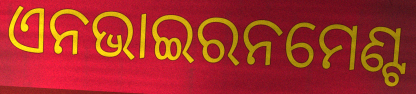
ଏନଭାଇରନମେଣ୍ଟ